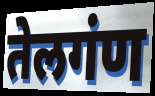
तेलगंण